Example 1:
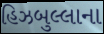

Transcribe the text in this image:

હિઝબુલ્લાના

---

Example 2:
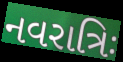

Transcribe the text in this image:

નવરાત્રિઃ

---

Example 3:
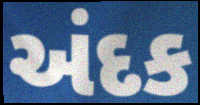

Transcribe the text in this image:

અંદક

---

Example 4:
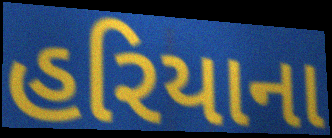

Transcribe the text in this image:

હરિયાના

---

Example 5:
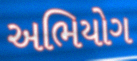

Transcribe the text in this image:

અભિયોગ